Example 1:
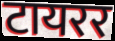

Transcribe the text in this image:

टायरर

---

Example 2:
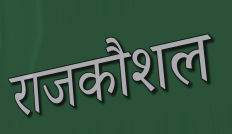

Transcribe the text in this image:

राजकौशल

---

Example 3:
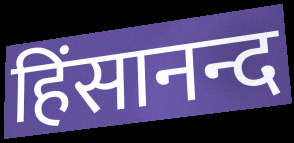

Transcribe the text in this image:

हिंसानन्द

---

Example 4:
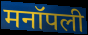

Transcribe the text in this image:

मनॉपली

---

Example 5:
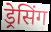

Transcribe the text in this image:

ड्रेसिंग